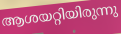
ആശയറ്റിയിരുന്നു